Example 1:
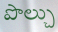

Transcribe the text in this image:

పొల్చు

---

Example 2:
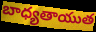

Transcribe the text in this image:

బాధ్యతాయుత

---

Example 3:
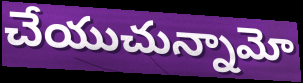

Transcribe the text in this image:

చేయుచున్నామో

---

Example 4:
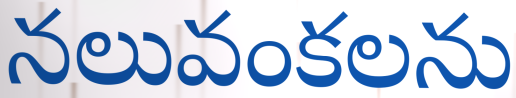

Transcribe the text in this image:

నలువంకలను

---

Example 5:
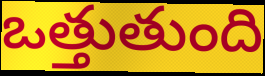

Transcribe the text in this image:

ఒత్తుతుంది